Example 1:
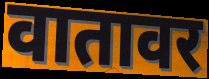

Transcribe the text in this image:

वातावर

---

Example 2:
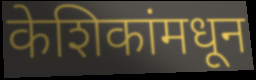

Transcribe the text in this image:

केशिकांमधून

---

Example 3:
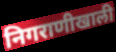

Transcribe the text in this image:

निगराणीखाली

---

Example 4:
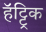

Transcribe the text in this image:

हॅट्ट्रिक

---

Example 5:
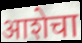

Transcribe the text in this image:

आशेचा